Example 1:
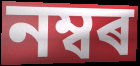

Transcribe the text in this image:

নম্বৰ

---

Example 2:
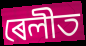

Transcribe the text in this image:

ৰেলীত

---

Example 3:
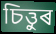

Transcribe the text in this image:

চিত্তুৰ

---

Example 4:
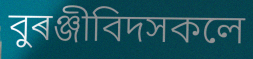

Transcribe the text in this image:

বুৰঞ্জীবিদসকলে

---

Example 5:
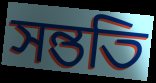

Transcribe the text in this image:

সন্ততি